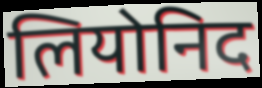
लियोनिद